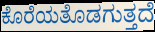
ಕೊರೆಯತೊಡಗುತ್ತದೆ